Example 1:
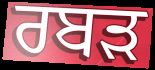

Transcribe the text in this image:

ਰਬੜ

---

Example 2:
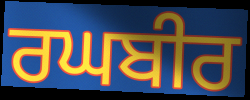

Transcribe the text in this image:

ਰਘਬੀਰ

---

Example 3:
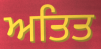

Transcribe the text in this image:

ਅਤਿਤ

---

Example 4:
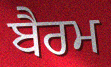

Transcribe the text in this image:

ਬੈਰਮ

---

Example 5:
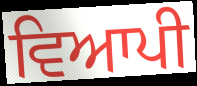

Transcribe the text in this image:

ਵਿਆਪੀ